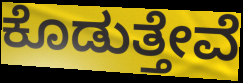
ಕೊಡುತ್ತೇವೆ